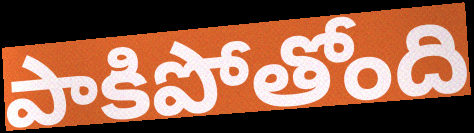
పాకిపోతోంది